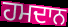
ਹਮਦਾਨ